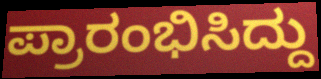
ಪ್ರಾರಂಭಿಸಿದ್ದು